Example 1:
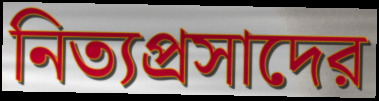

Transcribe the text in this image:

নিত্যপ্রসাদের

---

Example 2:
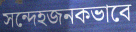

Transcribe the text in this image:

সন্দেহজনকভাবে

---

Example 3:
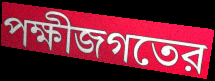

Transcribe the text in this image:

পক্ষীজগতের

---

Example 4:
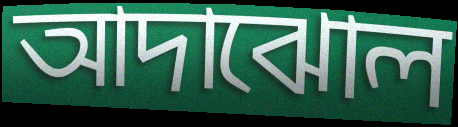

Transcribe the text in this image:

আদাঝোল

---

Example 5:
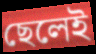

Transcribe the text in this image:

ছেলেই